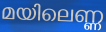
മയിലെണ്ണ